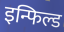
इन्फिल्ड